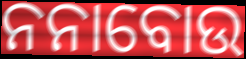
ନନାବୋଉ